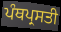
ਪੰਥਪ੍ਰਸਤੀ